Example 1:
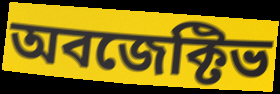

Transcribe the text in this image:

অবজেক্টিভ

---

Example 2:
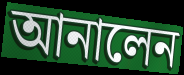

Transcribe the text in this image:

আনালেন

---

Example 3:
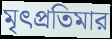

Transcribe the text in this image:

মৃৎপ্রতিমার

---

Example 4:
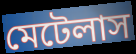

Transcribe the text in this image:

মেটেলাস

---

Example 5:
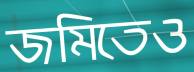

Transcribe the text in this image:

জমিতেও